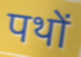
पथों